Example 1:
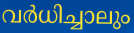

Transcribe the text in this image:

വർധിച്ചാലും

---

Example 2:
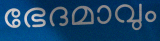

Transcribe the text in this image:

ഭേദമാവും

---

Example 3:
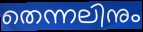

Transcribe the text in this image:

തെന്നലിനും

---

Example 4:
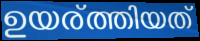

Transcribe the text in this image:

ഉയര്ത്തിയത്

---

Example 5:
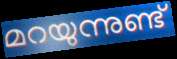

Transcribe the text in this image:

മറയുന്നുണ്ട്